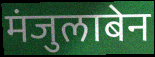
मंजुलाबेन